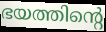
ഭയത്തിന്റെ